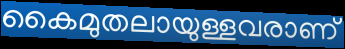
കൈമുതലായുള്ളവരാണ്